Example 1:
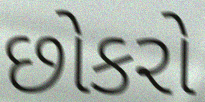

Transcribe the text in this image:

છોકરો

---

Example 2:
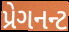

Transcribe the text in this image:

પ્રેગનન્ટ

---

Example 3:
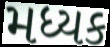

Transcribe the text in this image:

મધ્યક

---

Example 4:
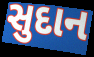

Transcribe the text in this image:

સુદાન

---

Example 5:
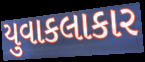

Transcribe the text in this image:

યુવાકલાકાર